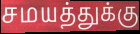
சமயத்துக்கு